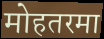
मोहतरमा